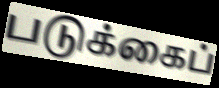
படுக்கைப்